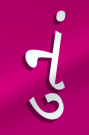
નું